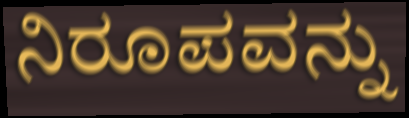
ನಿರೂಪವನ್ನು